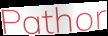
Pathor